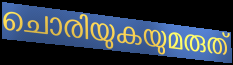
ചൊരിയുകയുമരുത്